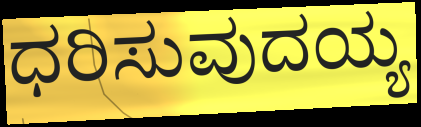
ಧರಿಸುವುದಯ್ಯ